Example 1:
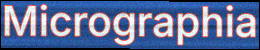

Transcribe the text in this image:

Micrographia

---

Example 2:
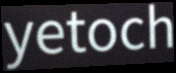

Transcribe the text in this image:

yetoch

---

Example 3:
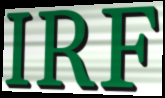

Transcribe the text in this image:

IRF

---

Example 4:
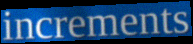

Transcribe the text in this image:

increments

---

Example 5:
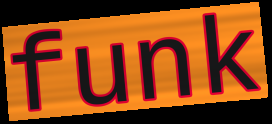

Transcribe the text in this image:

funk